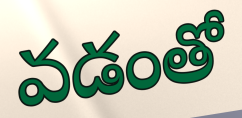
వడంతో